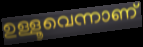
ഉള്ളൂവെന്നാണ്